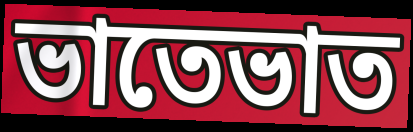
ভাতেভাত